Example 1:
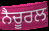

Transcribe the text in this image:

ਨੈਚੂਰਲ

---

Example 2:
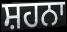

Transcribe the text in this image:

ਸ਼ਹਨਾ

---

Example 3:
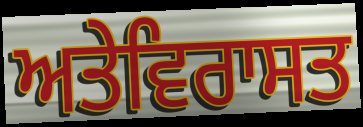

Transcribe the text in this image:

ਅਤੇਵਿਰਾਸਤ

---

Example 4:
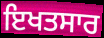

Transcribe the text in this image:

ਇਖਤਸਾਰ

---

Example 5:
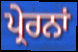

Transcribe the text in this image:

ਪ੍ਰੇਰਨਾਂ